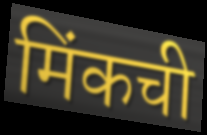
मिंकची